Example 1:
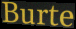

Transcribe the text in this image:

Burte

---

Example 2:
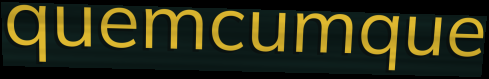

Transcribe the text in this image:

quemcumque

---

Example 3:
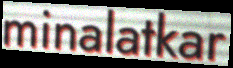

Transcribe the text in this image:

minalatkar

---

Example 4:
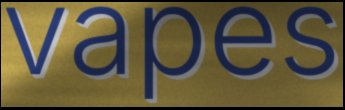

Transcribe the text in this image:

vapes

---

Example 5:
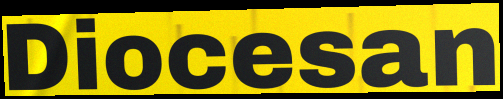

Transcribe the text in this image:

Diocesan